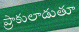
ప్రాకులాడుతూ